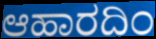
ಆಹಾರದಿಂ